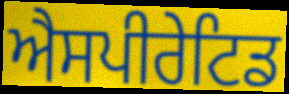
ਐਸਪੀਰੇਟਿਡ